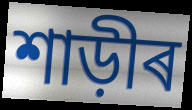
শাড়ীৰ